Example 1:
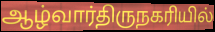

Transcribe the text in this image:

ஆழ்வார்திருநகரியில்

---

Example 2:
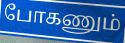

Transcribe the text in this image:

போகணும்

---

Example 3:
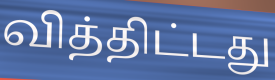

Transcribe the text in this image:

வித்திட்டது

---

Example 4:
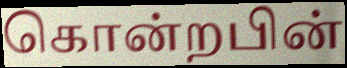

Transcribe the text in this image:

கொன்றபின்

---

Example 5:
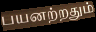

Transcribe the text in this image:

பயனற்றதும்